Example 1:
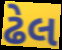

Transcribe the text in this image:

ઢેલ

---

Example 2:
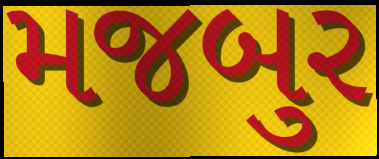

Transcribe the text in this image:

મજબુર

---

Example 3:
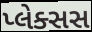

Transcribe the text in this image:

પ્લેક્સસ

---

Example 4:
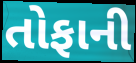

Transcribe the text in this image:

તોફાની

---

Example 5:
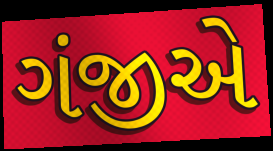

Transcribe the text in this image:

ગંજીએ